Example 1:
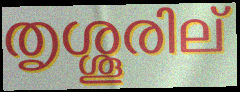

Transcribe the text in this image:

തൃശ്ശൂരില്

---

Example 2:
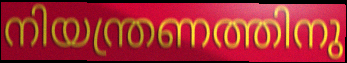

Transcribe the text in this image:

നിയന്ത്രണത്തിനു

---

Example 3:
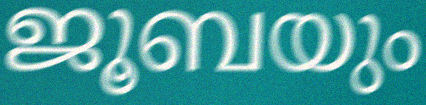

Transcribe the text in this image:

ജൂബയും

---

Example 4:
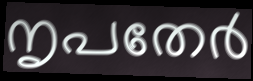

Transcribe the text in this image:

നൃപതേർ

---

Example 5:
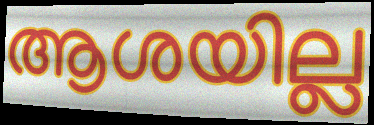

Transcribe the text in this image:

ആശയില്ല